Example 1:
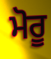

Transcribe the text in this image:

ਮੋਰੂ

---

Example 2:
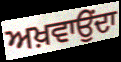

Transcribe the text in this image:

ਅਖ਼ਵਾਉਂਦਾ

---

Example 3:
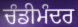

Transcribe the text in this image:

ਚੰਡੀਮੰਦਰ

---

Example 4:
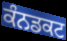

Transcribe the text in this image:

ਕੰਨਡਕਟ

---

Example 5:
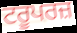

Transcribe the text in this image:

ਟਰੂਪਰਜ਼